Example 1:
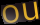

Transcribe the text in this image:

ou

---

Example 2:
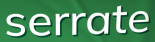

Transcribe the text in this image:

serrate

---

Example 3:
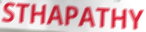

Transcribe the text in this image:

STHAPATHY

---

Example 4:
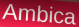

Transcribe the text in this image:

Ambica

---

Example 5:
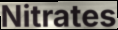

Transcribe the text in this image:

Nitrates